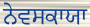
ਨੇਵਸਕਾਯਾ